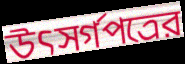
উৎসর্গপত্রের